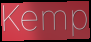
Kemp